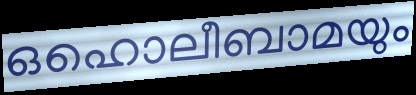
ഒഹൊലീബാമയും